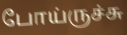
போய்ருச்சு